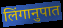
लिंगानुपात